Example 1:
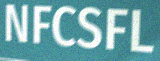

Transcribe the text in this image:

NFCSFL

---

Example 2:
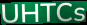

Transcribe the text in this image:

UHTCs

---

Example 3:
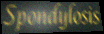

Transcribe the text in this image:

Spondylosis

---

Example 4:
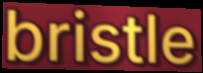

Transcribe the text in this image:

bristle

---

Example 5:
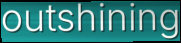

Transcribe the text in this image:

outshining